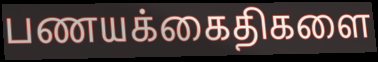
பணயக்கைதிகளை